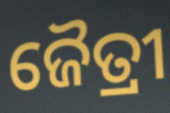
ଜୈତ୍ରୀ